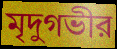
মৃদুগভীর